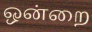
ஒன்றை